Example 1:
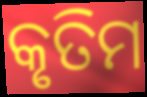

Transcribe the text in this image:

କୃତିମ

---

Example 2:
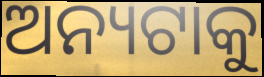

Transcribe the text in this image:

ଅନ୍ୟଟାକୁ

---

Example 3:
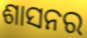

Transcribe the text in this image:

ଶାସନର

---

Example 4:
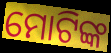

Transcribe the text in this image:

ମୋଟିଙ୍କ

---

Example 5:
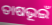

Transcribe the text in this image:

ତାଷଭୂଇଁ